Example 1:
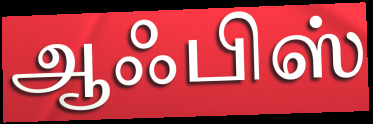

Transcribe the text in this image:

ஆஃபிஸ்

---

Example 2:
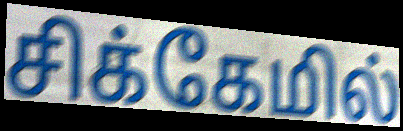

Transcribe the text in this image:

சிக்கேமில்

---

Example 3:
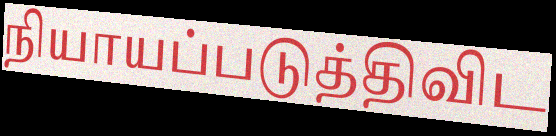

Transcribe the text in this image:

நியாயப்படுத்திவிட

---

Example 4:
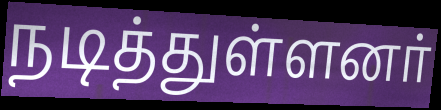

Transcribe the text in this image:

நடித்துள்ளனர்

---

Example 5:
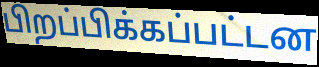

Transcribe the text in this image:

பிறப்பிக்கப்பட்டன